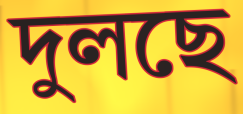
দুলছে